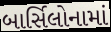
બાર્સિલોનામાં